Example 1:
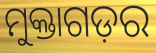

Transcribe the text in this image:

ମୁକ୍ତାଗଡ଼ର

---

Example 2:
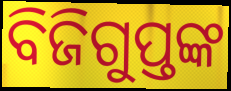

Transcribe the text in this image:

ବିଜିଗୁପ୍ତଙ୍କ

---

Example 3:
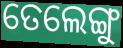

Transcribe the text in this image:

ତେଲେଙ୍ଗୁ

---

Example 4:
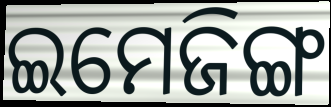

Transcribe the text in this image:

ଇମେଜିଙ୍ଗ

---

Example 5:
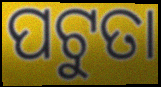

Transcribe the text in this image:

ପଟୁତା